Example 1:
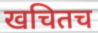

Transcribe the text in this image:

खचितच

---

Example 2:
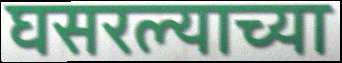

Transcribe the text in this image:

घसरल्याच्या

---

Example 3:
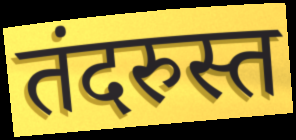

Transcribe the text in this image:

तंदरुस्त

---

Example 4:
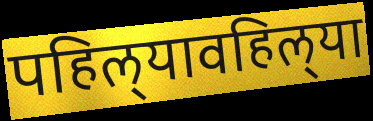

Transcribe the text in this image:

पहिल्यावहिल्या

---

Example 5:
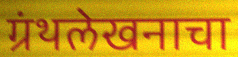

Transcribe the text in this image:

ग्रंथलेखनाचा